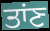
ਤਾਂਣ